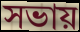
সভায়